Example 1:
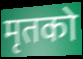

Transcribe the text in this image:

मृतको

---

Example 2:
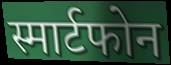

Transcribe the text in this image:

स्मार्टफोन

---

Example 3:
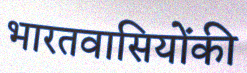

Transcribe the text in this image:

भारतवासियोंकी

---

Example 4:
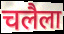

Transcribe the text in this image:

चलैला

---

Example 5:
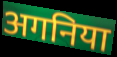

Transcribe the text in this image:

अगनिया